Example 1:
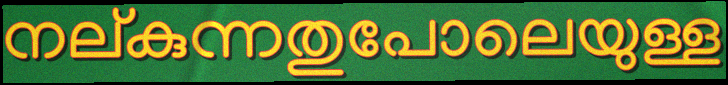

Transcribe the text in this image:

നല്കുന്നതുപോലെയുള്ള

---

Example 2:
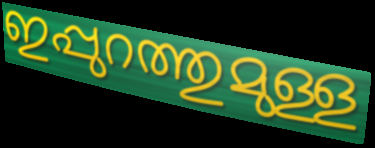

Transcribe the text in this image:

ഇപ്പുറത്തുമുള്ള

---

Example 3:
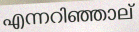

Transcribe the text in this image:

എന്നറിഞ്ഞാല്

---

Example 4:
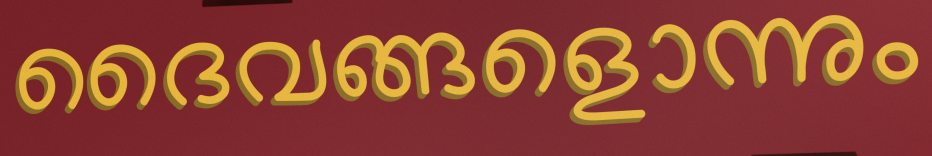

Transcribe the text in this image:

ദൈവങ്ങളൊന്നും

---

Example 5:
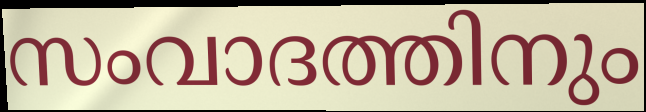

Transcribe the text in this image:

സംവാദത്തിനും